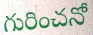
గురించనో